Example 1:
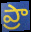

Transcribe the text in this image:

ప్రా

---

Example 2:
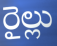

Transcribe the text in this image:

రైల్లు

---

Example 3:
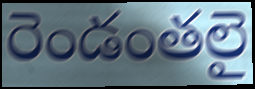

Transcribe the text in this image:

రెండంతలై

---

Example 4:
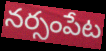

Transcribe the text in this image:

నర్సంపేట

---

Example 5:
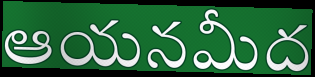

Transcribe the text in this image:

ఆయనమీద